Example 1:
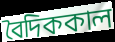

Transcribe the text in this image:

বৈদিককাল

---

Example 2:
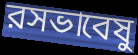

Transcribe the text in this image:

রসভাবেষু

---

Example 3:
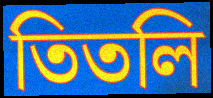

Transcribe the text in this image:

তিতলি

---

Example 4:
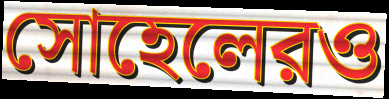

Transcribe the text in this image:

সোহেলেরও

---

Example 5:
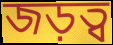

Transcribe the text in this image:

জড়ত্ব